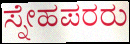
ಸ್ನೇಹಪರರು